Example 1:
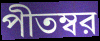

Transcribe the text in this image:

পীতম্বর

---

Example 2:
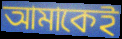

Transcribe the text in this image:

আমাকেই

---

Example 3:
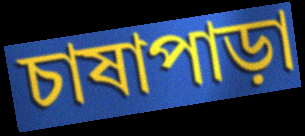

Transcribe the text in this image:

চাষাপাড়া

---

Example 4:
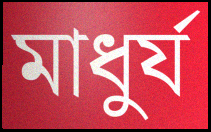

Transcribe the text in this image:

মাধুর্য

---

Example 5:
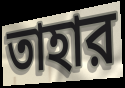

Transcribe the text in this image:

তাহার